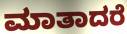
ಮಾತಾದರೆ